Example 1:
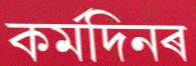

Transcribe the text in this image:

কৰ্মদিনৰ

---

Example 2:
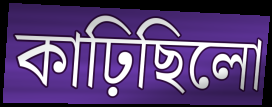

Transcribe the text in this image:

কাঢ়িছিলো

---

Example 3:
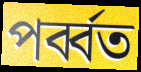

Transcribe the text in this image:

পৰ্ব্বত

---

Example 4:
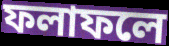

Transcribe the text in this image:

ফলাফলে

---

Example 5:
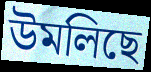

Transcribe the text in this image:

উমলিছে